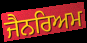
ਜੈਨਰਿਅਮ